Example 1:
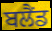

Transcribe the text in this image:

ਬਲੈਂਡ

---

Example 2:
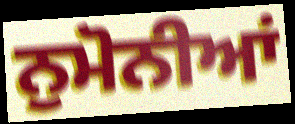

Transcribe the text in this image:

ਨੁਮੋਨੀਆਂ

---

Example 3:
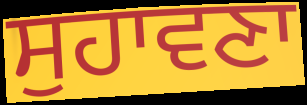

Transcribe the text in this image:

ਸੁਹਾਵਣਾ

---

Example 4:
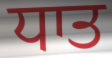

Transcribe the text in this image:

ਧਾਤ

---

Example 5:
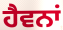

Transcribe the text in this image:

ਹੈਵਨਾਂ